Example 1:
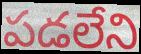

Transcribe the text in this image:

పడలేని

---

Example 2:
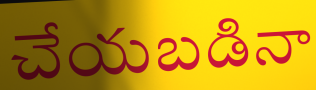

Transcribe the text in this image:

చేయబడినా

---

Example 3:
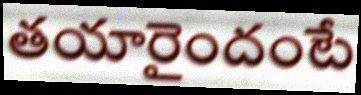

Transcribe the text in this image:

తయారైందంటే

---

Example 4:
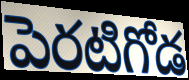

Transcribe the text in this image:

పెరటిగోడ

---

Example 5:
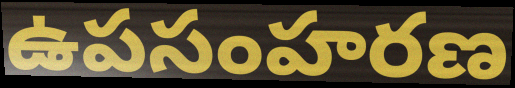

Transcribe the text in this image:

ఉపసంహరణ